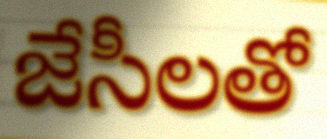
జేసీలతో